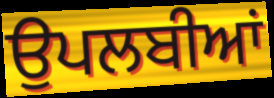
ਉਪਲਬੀਆਂ